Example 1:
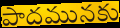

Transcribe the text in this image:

పాదమునకు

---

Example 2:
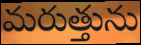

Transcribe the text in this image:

మరుత్తును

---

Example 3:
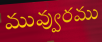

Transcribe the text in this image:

మువ్వురము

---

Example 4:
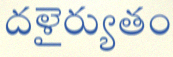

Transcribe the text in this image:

దళైర్యుతం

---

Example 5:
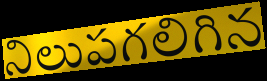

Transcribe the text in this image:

నిలుపగలిగిన